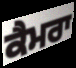
ਕੈਮਰਾ